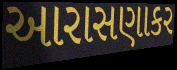
આરાસણાકર